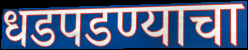
धडपडण्याचा